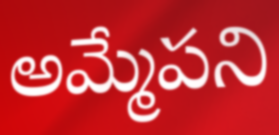
అమ్మేపని